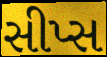
સીપ્સ